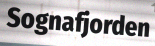
Sognafjorden